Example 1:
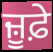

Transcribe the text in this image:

ਜ਼ੂਫ਼ੇ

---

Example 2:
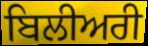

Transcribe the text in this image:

ਬਿਲੀਅਰੀ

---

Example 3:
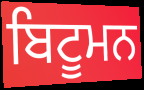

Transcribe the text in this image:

ਬਿਟੂਮਨ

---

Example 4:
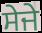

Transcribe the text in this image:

ਸੇਜੇ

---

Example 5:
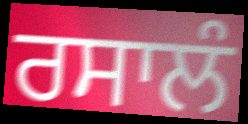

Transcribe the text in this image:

ਰਸਾਲੰ